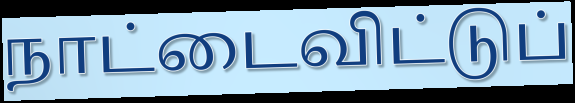
நாட்டைவிட்டுப்